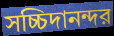
সচ্চিদানন্দর